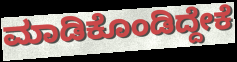
ಮಾಡಿಕೊಂಡಿದ್ದೇಕೆ